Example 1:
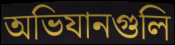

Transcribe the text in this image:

অভিযানগুলি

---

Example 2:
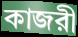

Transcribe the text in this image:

কাজরী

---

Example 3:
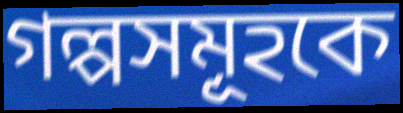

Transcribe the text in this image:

গল্পসমূহকে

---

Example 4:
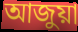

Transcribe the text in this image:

আজুয়া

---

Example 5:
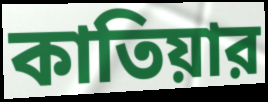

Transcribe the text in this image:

কাতিয়ার